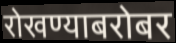
रोखण्याबरोबर